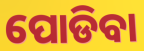
ପୋଡିବା